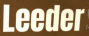
Leeder